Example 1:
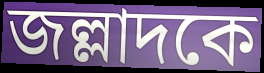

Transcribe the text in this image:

জল্লাদকে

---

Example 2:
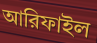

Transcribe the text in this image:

আরিফাইল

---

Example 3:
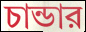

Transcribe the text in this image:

চান্ডার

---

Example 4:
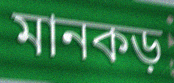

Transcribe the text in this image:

মানকড়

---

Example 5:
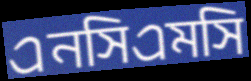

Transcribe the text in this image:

এনসিএমসি